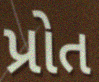
પ્રોત